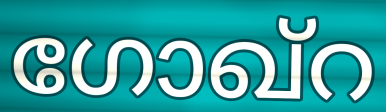
ഗോഖ്റ